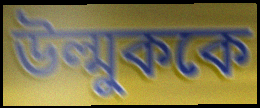
উল্মুককে